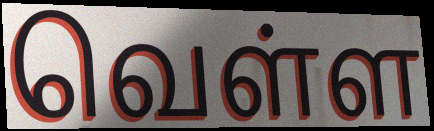
வெள்ள